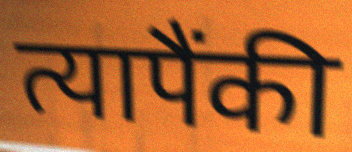
त्यापैंकी